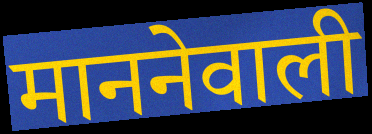
माननेवाली